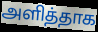
அளித்தாக